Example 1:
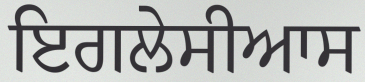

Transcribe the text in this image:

ਇਗਲੇਸੀਆਸ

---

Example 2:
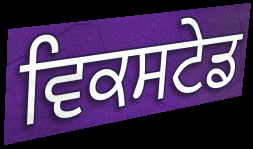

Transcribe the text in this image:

ਵਿਕਸਟੇਡ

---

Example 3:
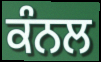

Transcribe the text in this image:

ਕੰਨਲ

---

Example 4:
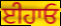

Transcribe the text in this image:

ਈਹਾਓ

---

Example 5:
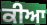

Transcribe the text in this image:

ਕੀਆ